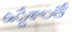
ఉద్దేశాలతో